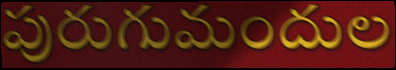
పురుగుమందుల